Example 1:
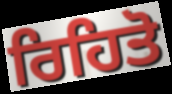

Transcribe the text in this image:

ਰਿਹਿਤੋ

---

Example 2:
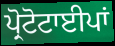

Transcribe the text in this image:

ਪ੍ਰੋਟੋਟਾਈਪਾਂ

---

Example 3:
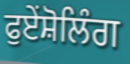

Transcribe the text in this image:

ਫੁਏਂਸ਼ੋਲਿੰਗ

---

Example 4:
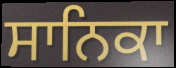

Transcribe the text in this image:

ਸਾਨਿਕਾ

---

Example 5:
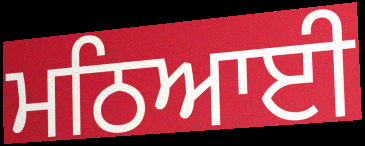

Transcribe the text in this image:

ਮਠਿਆਈ